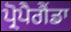
ਪ੍ਰੋਪੈਗੈਂਡਾ